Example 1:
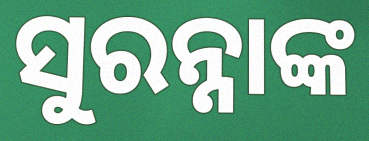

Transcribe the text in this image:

ସୁରନ୍ନାଙ୍କ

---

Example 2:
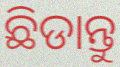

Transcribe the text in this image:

ଛିଡାନ୍ତୁ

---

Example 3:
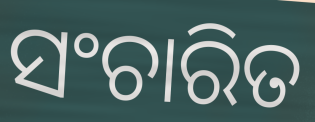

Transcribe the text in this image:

ସଂଚାରିତ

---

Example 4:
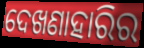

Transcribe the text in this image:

ଦେଖଣାହାରିର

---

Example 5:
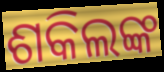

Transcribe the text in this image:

ଶକିଲଙ୍କ